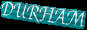
DURHAM